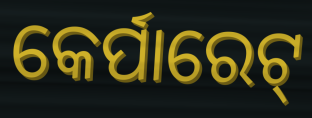
କେର୍ପାରେଟ୍